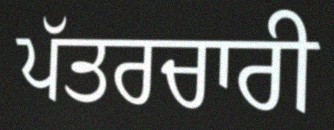
ਪੱਤਰਚਾਰੀ